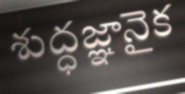
శుద్ధజ్ఞానైక